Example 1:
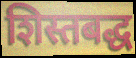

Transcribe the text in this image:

शिस्तबद्ध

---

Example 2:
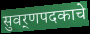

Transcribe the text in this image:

सुवर्णपदकाचे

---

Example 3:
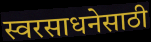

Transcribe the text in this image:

स्वरसाधनेसाठी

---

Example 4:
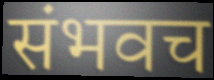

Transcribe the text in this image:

संभवच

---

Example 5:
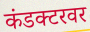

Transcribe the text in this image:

कंडक्टरवर